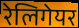
रेलिगेयर